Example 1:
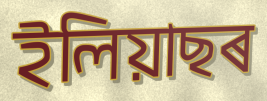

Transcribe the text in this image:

ইলিয়াছৰ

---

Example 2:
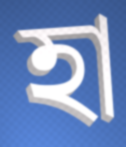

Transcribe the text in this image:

হা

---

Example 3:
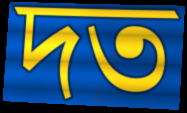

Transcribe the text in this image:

দত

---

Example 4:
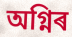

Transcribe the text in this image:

অগ্নিৰ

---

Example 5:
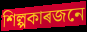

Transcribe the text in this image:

শিল্পকাৰজনে